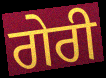
ਗੇਰੀ